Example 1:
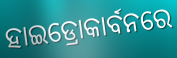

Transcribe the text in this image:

ହାଇଡ୍ରୋକାର୍ବନରେ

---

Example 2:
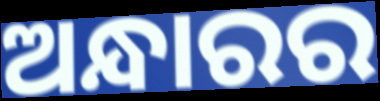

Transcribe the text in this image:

ଅନ୍ଧାରର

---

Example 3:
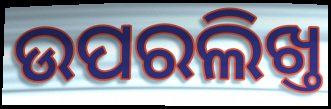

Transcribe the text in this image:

ଉପରଲିଖ୍ତ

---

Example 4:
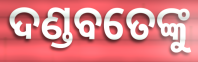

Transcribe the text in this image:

ଦଣ୍ଡବତେଙ୍କୁ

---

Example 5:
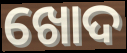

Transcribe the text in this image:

ଖୋଦ